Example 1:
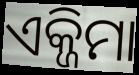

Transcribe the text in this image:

ଏକ୍ଜିମା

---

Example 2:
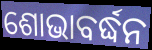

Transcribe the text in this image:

ଶୋଭାବର୍ଦ୍ଧନ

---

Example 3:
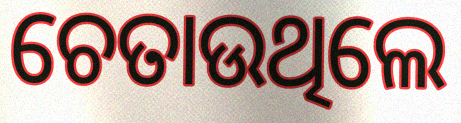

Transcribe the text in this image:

ଚେତାଉଥିଲେ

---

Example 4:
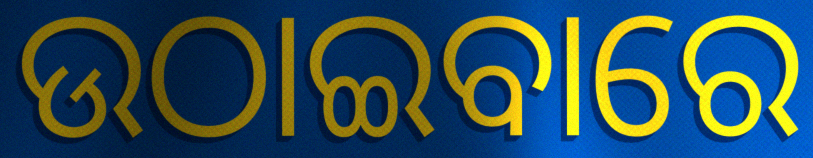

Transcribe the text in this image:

ଉଠାଇବାରେ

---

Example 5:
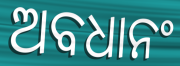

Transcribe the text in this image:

ଅବଧାନଂ